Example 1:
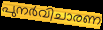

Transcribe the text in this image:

പുനർവിചാരണ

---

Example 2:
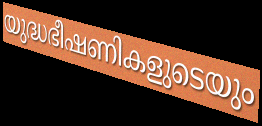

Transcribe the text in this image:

യുദ്ധഭീഷണികളുടെയും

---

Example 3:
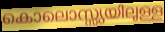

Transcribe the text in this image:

കൊലൊസ്സ്യയിലുള്ള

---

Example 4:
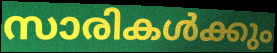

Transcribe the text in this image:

സാരികൾക്കും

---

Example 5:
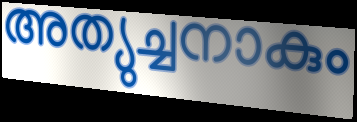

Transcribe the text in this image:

അത്യുച്ചനാകും